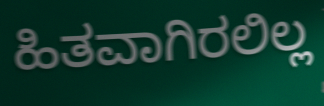
ಹಿತವಾಗಿರಲಿಲ್ಲ